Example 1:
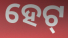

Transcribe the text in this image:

ହେଟ୍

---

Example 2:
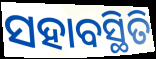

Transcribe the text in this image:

ସହାବସ୍ଥିତି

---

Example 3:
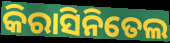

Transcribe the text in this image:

କିରାସିନିତେଲ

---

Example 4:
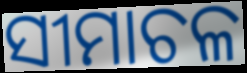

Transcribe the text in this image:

ସୀମାଚଳ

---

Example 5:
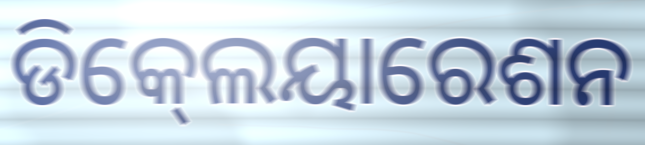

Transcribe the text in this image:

ଡିକ୍‍ଲେୟାରେଶନ